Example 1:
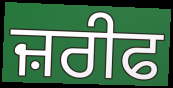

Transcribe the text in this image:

ਜ਼ਰੀਫ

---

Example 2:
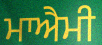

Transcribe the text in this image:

ਮਾਐਮੀ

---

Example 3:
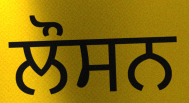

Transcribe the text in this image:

ਲੌਸਨ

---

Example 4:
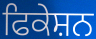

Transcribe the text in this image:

ਫਿਕੇਸ਼ਨ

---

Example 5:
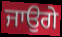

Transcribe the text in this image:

ਜਾਉਗੇ